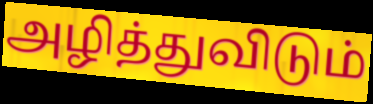
அழித்துவிடும்